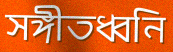
সঙ্গীতধ্বনি